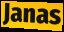
Janas